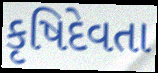
કૃષિદેવતા